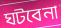
ঘটবেনা